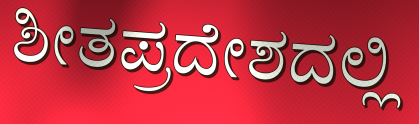
ಶೀತಪ್ರದೇಶದಲ್ಲಿ